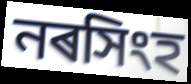
নৰসিংহ